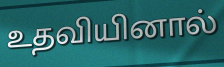
உதவியினால்